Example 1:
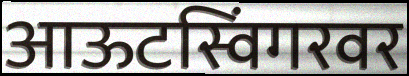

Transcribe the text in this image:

आऊटस्विंगरवर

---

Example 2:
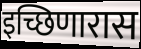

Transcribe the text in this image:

इच्छिणारास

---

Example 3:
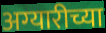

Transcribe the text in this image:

अग्यारीच्या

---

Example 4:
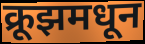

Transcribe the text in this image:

क्रूझमधून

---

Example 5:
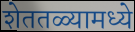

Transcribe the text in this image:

शेततळ्यामध्ये